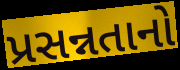
પ્રસન્નતાનો